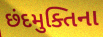
છંદમુક્તિના